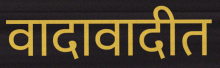
वादावादीत